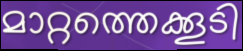
മാറ്റത്തെക്കൂടി